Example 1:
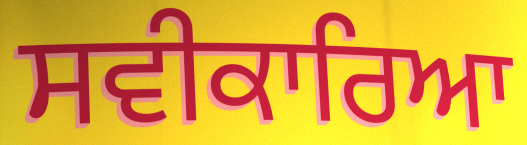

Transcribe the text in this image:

ਸਵੀਕਾਰਿਆ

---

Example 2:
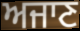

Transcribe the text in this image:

ਅਜਾਣ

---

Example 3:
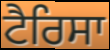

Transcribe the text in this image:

ਟੈਰਿਸਾ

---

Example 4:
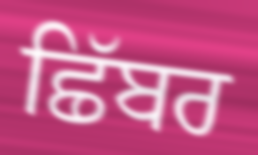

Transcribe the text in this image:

ਛਿੱਬਰ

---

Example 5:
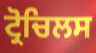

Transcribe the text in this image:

ਟ੍ਰੋਚਿਲਸ